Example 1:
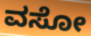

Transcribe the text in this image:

ವಸೋ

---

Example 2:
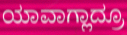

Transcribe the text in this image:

ಯಾವಾಗ್ಲಾದ್ರೂ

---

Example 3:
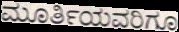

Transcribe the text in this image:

ಮೂರ್ತಿಯವರಿಗೂ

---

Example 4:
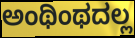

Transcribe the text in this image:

ಅಂಥಿಂಥದಲ್ಲ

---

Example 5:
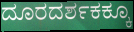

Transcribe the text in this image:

ದೂರದರ್ಶಕಕ್ಕೂ